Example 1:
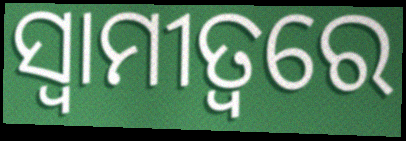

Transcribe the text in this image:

ସ୍ୱାମୀତ୍ୱରେ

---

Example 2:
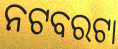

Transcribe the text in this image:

ନଟବରଟା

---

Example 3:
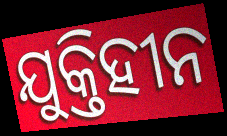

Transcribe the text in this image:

ଯୁକ୍ତିହୀନ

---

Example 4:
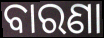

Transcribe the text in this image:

ବାରଣା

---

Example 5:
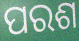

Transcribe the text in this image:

ପରଶ